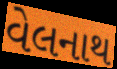
વેલનાથ